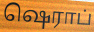
ஷெராப்